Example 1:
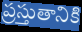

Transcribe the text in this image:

ప్రస్తుతానికి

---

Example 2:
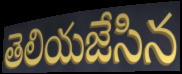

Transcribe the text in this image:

తెలియజేసిన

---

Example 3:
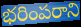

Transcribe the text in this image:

భరింపరాని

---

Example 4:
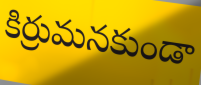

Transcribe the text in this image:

కిర్రుమనకుండా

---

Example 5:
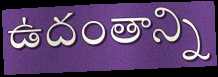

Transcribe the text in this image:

ఉదంతాన్ని